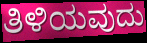
ತಿಳಿಯವುದು